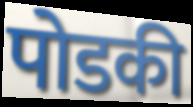
पोडकी